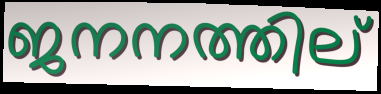
ജനനത്തില്